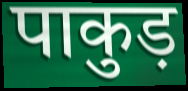
पाकुड़